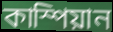
কাস্পিয়ান